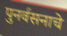
पुनर्वसनाचे